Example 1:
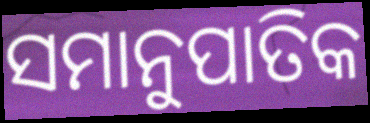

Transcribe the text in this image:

ସମାନୁପାତିକ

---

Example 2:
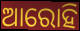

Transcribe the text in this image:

ଆରୋହି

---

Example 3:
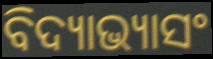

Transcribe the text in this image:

ବିଦ୍ୟାଭ୍ୟାସଂ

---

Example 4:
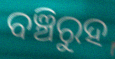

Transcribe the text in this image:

ବଞ୍ଚିରୁହ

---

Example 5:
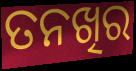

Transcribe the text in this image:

ତନଖିର